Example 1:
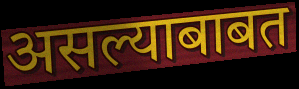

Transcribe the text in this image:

असल्याबाबत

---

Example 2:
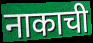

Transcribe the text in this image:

नाकाची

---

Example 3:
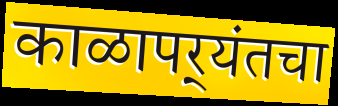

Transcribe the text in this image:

काळापर्यंतचा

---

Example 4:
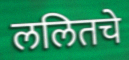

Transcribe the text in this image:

ललितचे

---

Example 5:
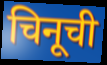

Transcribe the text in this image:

चिनूची